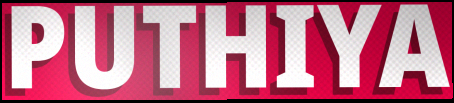
PUTHIYA